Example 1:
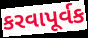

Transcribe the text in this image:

કરવાપૂર્વક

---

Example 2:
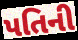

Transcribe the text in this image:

પતિની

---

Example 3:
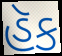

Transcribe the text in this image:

હૅક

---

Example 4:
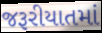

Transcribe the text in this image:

જરૂરીયાતમાં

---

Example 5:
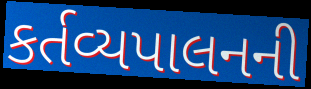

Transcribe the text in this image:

કર્તવ્યપાલનની